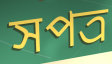
সপত্র